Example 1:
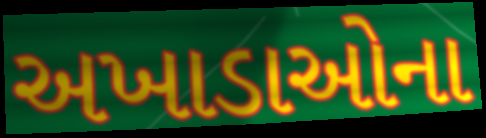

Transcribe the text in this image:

અખાડાઓના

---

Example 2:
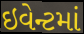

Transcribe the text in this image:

ઇવેન્ટમાં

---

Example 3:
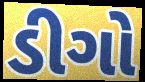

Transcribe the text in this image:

ડીગો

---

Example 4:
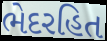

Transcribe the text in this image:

ભેદરહિત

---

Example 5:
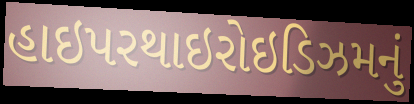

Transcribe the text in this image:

હાઇપરથાઇરોઇડિઝમનું